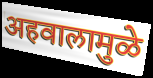
अहवालामुळे